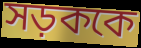
সড়ককে